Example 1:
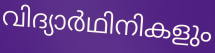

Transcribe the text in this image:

വിദ്യാർഥിനികളും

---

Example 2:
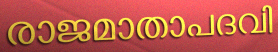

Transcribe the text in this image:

രാജമാതാപദവി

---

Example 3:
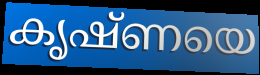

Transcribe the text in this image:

കൃഷ്ണയെ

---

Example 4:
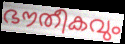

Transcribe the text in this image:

ഭൗതീകവും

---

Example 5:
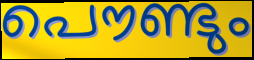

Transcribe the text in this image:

പൌണ്ടും